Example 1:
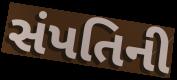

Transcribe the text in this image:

સંપતિની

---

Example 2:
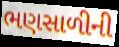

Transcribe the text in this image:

ભણસાળીની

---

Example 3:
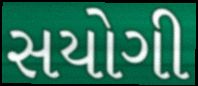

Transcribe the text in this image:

સયોગી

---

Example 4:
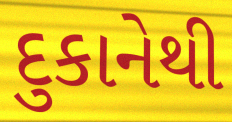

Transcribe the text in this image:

દુકાનેથી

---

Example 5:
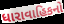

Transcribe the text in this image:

ધારાવાહિકનો